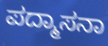
ಪದ್ಮಾಸನಾ